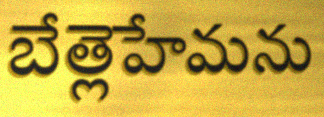
బేత్లెహేమను